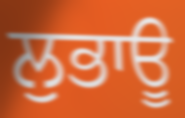
ਲੁਭਾਊ